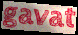
gavat